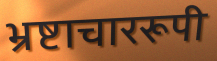
भ्रष्टाचाररूपी